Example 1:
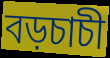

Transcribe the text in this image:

বড়চাচী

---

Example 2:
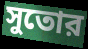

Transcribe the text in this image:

সুতোর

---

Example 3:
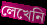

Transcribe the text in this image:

লেখেনি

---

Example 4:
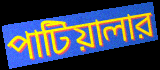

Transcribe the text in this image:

পাটিয়ালার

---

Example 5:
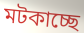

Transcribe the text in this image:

মটকাচ্ছে